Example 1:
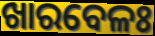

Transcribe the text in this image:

ଖାରବେଳଃ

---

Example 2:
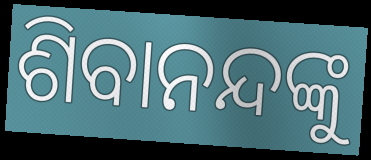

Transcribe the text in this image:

ଶିବାନନ୍ଦଙ୍କୁ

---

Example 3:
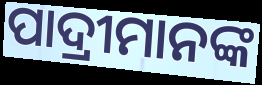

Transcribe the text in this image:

ପାଦ୍ରୀମାନଙ୍କ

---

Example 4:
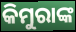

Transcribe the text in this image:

କିମୁରାଙ୍କ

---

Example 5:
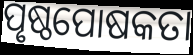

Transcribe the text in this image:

ପୃଷ୍ଠପୋଷକତା